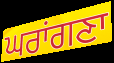
ਘਰਾਂਗਣਾ